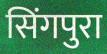
सिंगपुरा